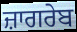
ਜ਼ਾਗਰੇਬ